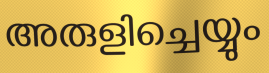
അരുളിച്ചെയ്യും